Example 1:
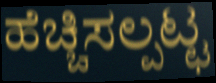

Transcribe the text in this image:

ಹೆಚ್ಚಿಸಲ್ಪಟ್ಟ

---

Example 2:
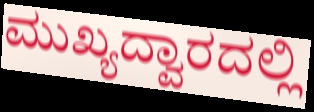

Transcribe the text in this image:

ಮುಖ್ಯದ್ವಾರದಲ್ಲಿ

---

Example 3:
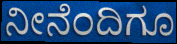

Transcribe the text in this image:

ನೀನೆಂದಿಗೂ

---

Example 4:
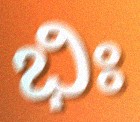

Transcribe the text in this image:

ಭಿಃ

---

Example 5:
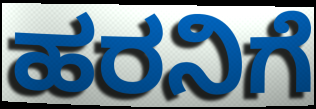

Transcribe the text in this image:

ಹರನಿಗೆ